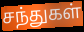
சந்துகள்